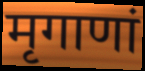
मृगाणां